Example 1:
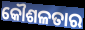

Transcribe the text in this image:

କୌଶଳତାର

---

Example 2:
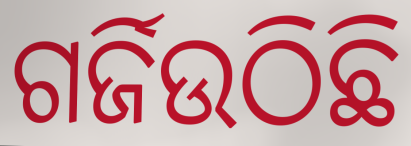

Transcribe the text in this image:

ଗର୍ଜିଉଠିଛି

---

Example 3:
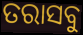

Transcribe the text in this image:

ତରାସବୁ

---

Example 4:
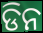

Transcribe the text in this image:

ଡିନ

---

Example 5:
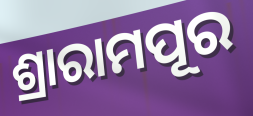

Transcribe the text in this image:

ଶ୍ରାରାମପୂର